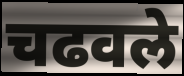
चढवले